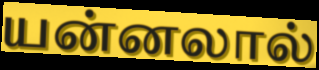
யன்னலால்